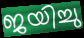
ജയിച്ചു